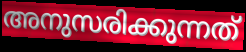
അനുസരിക്കുന്നത്